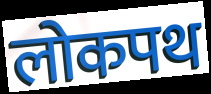
लोकपथ